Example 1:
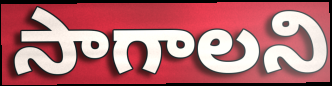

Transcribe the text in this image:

సాగాలని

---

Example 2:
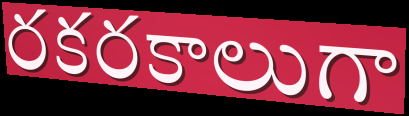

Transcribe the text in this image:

రకరకాలుగా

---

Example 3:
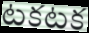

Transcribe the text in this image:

టకటక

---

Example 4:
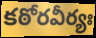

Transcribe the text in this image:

కఠోరవీర్యః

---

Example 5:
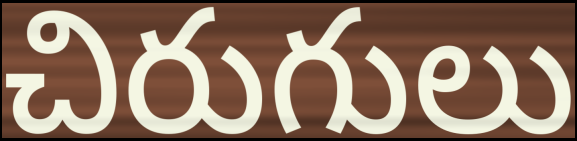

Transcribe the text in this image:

చిరుగులు